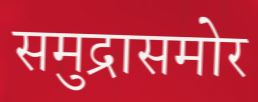
समुद्रासमोर